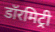
डॉरमिट्री